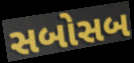
સબોસબ